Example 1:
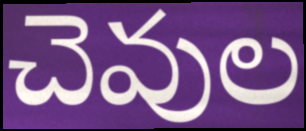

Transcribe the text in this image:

చెవుల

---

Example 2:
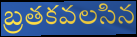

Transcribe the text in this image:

బ్రతకవలసిన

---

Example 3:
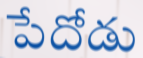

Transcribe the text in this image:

పేదోడు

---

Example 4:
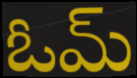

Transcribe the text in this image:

ఓమ్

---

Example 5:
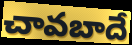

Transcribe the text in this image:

చావబాదే